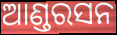
ଆଣ୍ଡରସନ